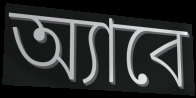
অ্যাবে